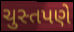
ચુસ્તપણે